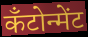
कँटोन्मेंट